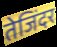
तेजिंदर